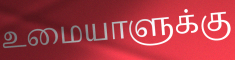
உமையாளுக்கு